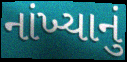
નાંખ્યાનું